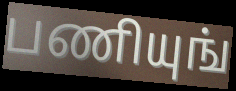
பணியுங்